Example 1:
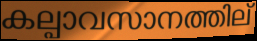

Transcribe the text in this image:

കല്പാവസാനത്തില്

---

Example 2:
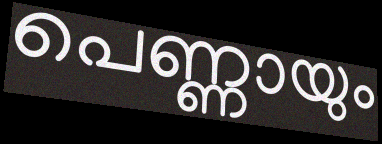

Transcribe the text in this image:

പെണ്ണായും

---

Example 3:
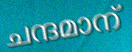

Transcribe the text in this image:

ചന്ദമാന്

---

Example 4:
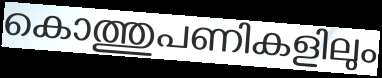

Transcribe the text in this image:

കൊത്തുപണികളിലും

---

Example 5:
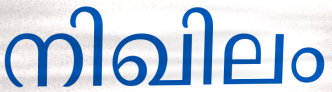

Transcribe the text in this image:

നിഖിലം